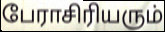
பேராசிரியரும்